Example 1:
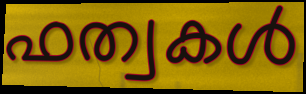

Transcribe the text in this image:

ഫത്വകൾ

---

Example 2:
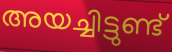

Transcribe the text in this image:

അയച്ചിട്ടുണ്ട്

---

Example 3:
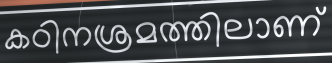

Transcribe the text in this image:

കഠിനശ്രമത്തിലാണ്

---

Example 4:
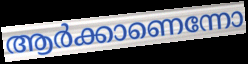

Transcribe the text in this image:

ആർക്കാണെന്നോ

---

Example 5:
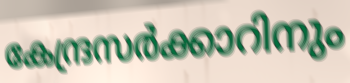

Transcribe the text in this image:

കേന്ദ്രസർക്കാറിനും